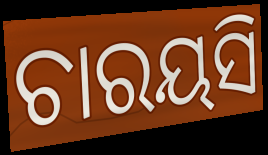
ଚାରୟସି